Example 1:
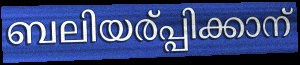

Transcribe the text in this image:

ബലിയര്പ്പിക്കാന്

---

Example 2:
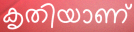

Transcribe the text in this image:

കൃതിയാണ്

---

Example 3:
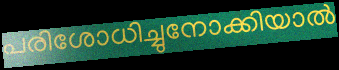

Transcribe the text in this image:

പരിശോധിച്ചുനോക്കിയാൽ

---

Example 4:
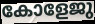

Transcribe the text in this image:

കോളേജു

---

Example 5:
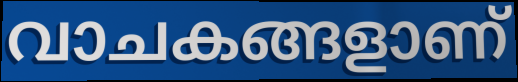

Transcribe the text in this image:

വാചകങ്ങളാണ്